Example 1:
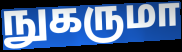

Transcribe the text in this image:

நுகருமா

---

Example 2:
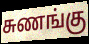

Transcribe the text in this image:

சுணங்கு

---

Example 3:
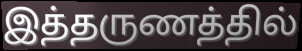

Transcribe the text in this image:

இத்தருணத்தில்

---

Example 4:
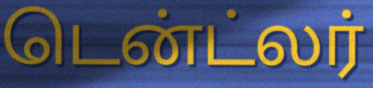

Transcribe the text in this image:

டென்ட்லர்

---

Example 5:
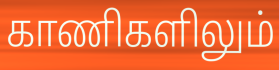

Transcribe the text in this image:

காணிகளிலும்